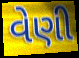
વેણી